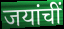
जयांचीं